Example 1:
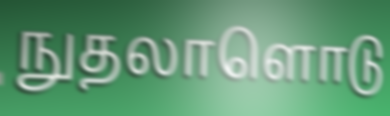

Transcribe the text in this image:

நுதலாளொடு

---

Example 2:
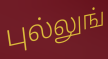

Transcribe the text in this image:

புல்லுங்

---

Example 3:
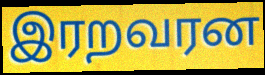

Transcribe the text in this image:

இரறவரன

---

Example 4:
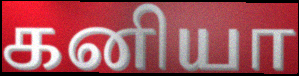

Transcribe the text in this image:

கனியா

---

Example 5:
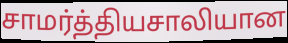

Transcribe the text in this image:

சாமர்த்தியசாலியான